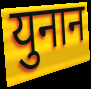
युनान